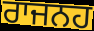
ਰਾਜਨਹ